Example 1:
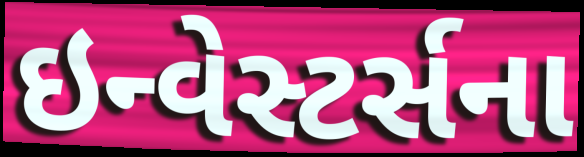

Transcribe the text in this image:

ઇન્વેસ્ટર્સના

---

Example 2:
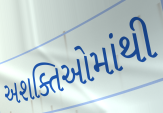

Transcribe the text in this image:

અશક્તિઓમાંથી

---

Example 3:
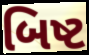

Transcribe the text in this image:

બિષ્ટ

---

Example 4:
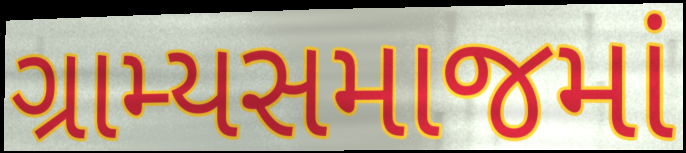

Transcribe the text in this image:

ગ્રામ્યસમાજમાં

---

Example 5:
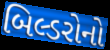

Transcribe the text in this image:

બિલ્ડરોનો